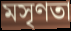
মসৃণতা